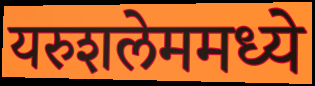
यरुशलेममध्ये